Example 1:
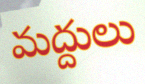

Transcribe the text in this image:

మద్దులు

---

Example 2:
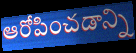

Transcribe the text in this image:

ఆరోపించడాన్ని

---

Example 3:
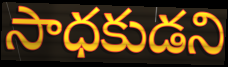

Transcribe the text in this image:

సాధకుడని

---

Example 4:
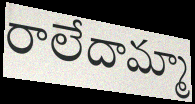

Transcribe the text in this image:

రాలేదామ్మా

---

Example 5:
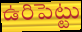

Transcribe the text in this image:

ఉరిపెట్టు